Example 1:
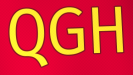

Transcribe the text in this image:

QGH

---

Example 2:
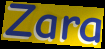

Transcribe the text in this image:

Zara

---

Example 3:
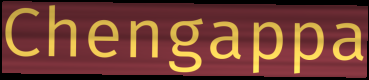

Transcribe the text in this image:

Chengappa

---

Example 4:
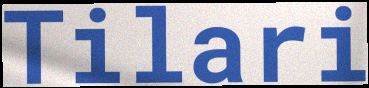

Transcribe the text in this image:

Tilari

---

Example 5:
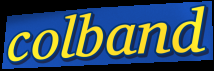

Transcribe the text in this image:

colband